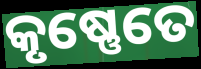
କୃଷ୍ଣେତେ